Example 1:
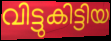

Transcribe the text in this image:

വിട്ടുകിട്ടിയ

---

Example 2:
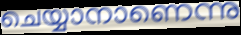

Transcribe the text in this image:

ചെയ്യാനാണെന്നു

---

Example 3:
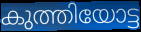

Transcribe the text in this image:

കുത്തിയോട്ട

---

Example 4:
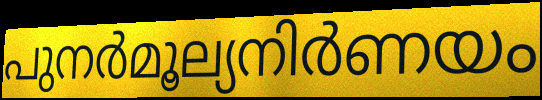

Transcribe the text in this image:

പുനർമൂല്യനിർണയം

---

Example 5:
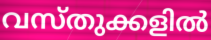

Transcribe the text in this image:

വസ്തുക്കളിൽ